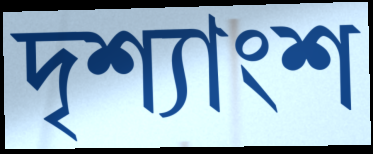
দৃশ্যাংশ